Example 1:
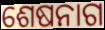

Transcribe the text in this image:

ଶେଷନାଗ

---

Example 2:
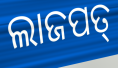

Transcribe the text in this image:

ଲାଜପତ୍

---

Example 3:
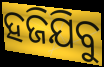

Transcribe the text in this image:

ହଜିଯିବୁ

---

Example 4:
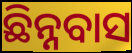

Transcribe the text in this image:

ଛିନ୍ନବାସ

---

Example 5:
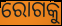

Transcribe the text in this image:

ରୋଗକୁ